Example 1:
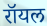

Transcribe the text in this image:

रॉयल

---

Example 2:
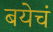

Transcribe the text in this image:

बयेचं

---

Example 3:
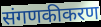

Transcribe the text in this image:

संगणकीकरण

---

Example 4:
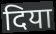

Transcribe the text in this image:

दिया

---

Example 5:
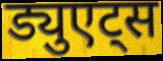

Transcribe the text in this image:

ड्युएट्स